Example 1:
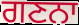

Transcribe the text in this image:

ਗਣਨਾ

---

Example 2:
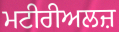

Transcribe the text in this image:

ਮਟੀਰੀਅਲਜ਼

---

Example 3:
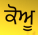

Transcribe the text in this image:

ਕੋਅੂ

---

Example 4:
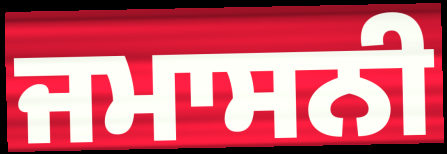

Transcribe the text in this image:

ਜਮਾਸਨੀ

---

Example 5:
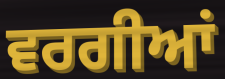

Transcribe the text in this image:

ਵਰਗੀਆਂ